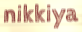
nikkiya